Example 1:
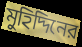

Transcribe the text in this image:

মুহিদ্দিনের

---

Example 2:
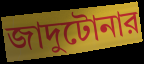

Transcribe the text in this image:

জাদুটোনার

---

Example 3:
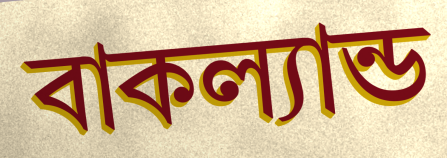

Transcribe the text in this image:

বাকল্যান্ড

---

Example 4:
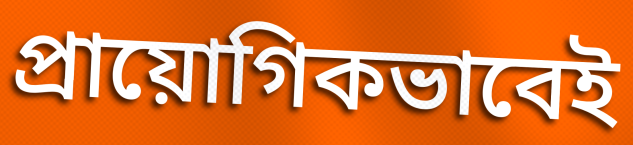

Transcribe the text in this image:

প্রায়োগিকভাবেই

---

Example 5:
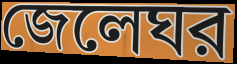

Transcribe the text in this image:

জেলেঘর